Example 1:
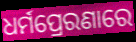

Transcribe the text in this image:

ଧର୍ମପ୍ରେରଣାରେ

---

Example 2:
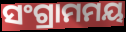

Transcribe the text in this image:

ସଂଗ୍ରାମମୟ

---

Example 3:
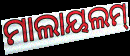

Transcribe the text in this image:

ମାଲାୟଲମ୍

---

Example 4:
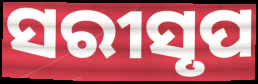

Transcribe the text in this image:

ସରୀସୃପ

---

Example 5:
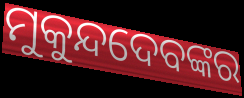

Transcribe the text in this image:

ମୁକୁନ୍ଦଦେବଙ୍କର